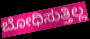
ಬೋಧಿಸುತ್ತಿಲ್ಲ